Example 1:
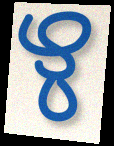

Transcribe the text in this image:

ഴു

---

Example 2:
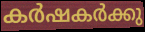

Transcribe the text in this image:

കർഷകർക്കു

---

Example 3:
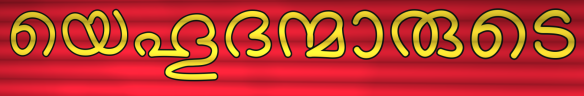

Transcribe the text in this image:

യെഹൂദന്മാരുടെ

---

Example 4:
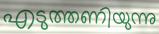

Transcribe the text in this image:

എടുത്തണിയുന്നു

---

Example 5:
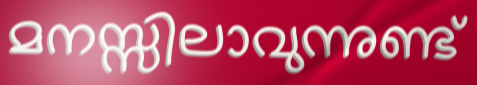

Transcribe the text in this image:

മനസ്സിലാവുന്നുണ്ട്